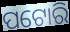
ପଟୋରି